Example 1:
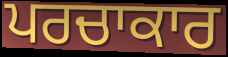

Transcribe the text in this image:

ਪਰਚਾਕਾਰ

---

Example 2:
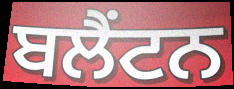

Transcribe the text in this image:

ਬਲੈਂਟਨ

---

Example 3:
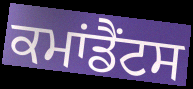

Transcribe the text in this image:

ਕਮਾਂਡੈਂਟਸ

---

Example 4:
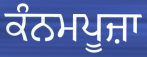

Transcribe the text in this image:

ਕੰਨਮਪੂਜ਼ਾ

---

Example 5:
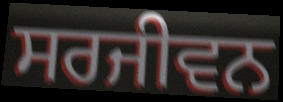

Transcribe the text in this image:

ਸਰਜੀਵਨ